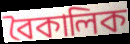
বৈকালিক